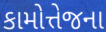
કામોત્તેજના